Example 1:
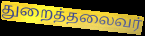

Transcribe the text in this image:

துறைத்தலைவர்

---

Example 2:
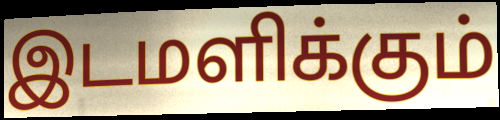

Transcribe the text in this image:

இடமளிக்கும்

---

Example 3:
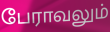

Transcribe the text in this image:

பேராவலும்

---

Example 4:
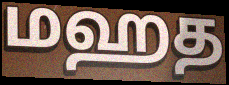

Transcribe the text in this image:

மஹத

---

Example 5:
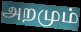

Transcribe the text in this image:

அறமும்